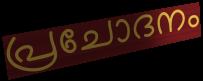
പ്രചോദനം